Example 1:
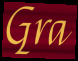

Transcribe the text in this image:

Gra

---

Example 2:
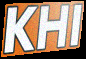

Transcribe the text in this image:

KHI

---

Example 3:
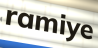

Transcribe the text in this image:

ramiye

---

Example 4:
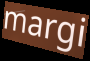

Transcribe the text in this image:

margi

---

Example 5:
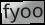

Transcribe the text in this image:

fyoo